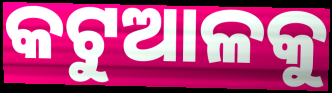
କଟୁଆଳକୁ